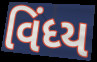
વિંધ્ય